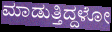
ಮಾಡುತ್ತಿದ್ದಳೋ